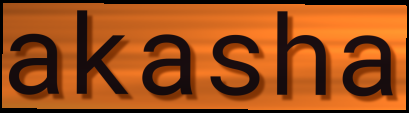
akasha